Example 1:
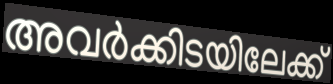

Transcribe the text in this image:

അവർക്കിടയിലേക്ക്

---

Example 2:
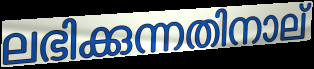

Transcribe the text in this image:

ലഭിക്കുന്നതിനാല്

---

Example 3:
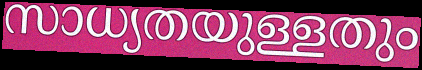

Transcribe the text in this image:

സാധ്യതയുള്ളതും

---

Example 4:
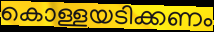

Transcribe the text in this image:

കൊള്ളയടിക്കണം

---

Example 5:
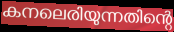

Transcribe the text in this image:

കനലെരിയുന്നതിന്റെ